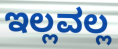
ಇಲ್ಲವಲ್ಲ